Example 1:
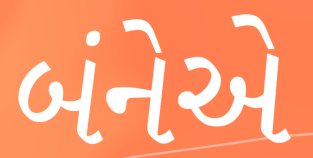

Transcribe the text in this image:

બંનેએ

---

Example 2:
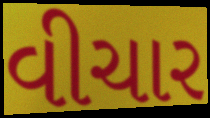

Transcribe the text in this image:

વીચાર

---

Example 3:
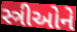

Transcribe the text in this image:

સ્ત્રીઓને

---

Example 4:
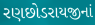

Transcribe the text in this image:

રણછોડરાયજીનાં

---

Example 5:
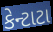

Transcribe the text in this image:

કેન્ટાટા